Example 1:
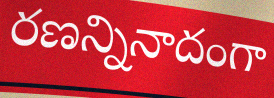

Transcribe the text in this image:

రణన్నినాదంగా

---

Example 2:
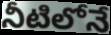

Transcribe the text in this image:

నీటిలోనే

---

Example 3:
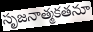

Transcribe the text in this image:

సృజనాత్మకతనూ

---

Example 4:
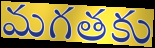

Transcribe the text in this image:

మగతకు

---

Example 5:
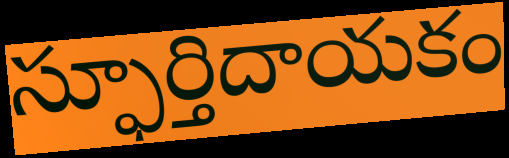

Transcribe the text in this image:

స్ఫూర్తిదాయకం